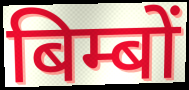
बिम्बों